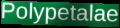
Polypetalae